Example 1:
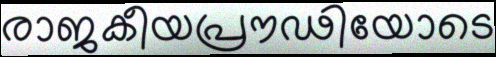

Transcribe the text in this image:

രാജകീയപ്രൗഢിയോടെ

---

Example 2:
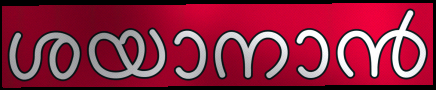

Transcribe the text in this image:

ശയാനാൻ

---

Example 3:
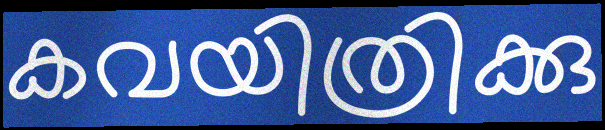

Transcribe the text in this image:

കവയിത്രിക്കു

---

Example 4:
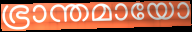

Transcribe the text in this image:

ഭ്രാന്തമായോ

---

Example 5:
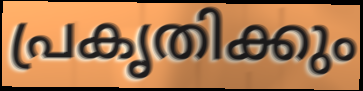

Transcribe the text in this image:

പ്രകൃതിക്കും